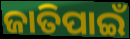
ଜାତିପାଇଁ